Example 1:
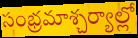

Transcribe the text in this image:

సంభ్రమాశ్చర్యాల్లో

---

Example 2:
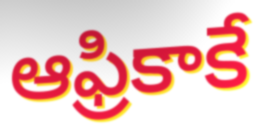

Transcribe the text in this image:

ఆఫ్రికాకే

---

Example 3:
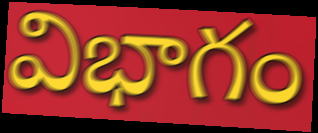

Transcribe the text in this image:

విభాగం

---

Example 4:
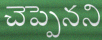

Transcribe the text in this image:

చెప్పెనని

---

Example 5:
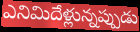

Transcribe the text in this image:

ఎనిమిదేళ్లున్నప్పుడు